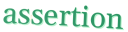
assertion